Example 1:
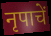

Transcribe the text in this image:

नृपाचें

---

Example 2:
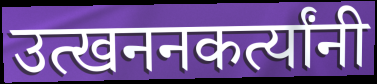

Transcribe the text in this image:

उत्खननकर्त्यांनी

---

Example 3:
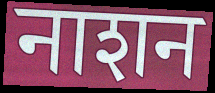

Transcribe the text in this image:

नाशन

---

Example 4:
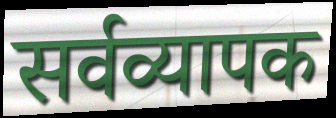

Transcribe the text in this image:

सर्वव्यापक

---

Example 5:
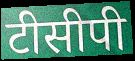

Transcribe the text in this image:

टीसीपी